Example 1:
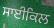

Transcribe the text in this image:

ਸਾਈਕਿਲ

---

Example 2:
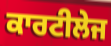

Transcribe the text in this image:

ਕਾਰਟੀਲੇਜ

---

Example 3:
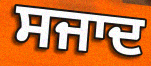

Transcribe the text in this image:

ਸਜਾਦ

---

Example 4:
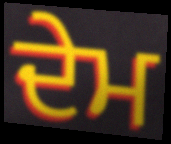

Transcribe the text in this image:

ਦੇਮ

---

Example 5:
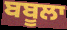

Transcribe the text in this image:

ਬਬੂਲਾ